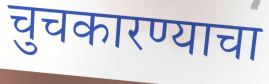
चुचकारण्याचा